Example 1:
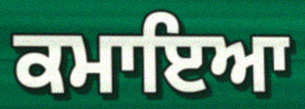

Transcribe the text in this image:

ਕਮਾਇਆ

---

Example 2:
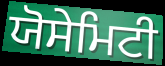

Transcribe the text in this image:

ਯੋਸੇਮਿਟੀ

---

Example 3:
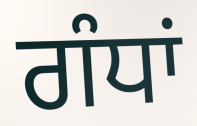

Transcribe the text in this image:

ਗੰਧਾਂ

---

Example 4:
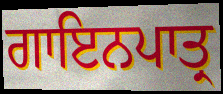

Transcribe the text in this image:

ਗਾਇਨਪਾਤ੍ਰ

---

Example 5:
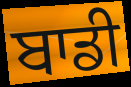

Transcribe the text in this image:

ਬਾਡੀ